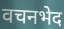
वचनभेद